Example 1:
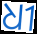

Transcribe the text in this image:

ଧୀ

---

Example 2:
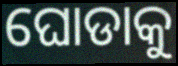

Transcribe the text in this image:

ଘୋଡାକୁ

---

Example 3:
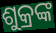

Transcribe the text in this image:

ଶୁକ୍ରଙ୍କ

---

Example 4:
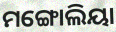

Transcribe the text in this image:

ମଙ୍ଗୋଲିୟା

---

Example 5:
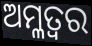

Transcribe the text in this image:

ଅମ୍ଳତ୍ଵର